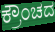
ಕ್ರೌಂಚದ